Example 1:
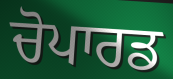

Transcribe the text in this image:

ਚੋਪਾਰਡ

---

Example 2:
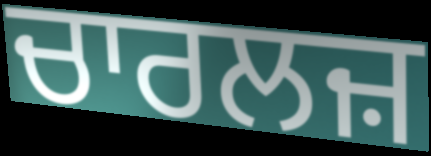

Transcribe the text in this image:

ਚਾਰਲਜ਼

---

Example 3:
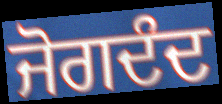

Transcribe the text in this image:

ਜੋਗਦੰਦ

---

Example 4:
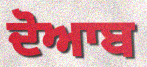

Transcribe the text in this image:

ਦੋਆਬ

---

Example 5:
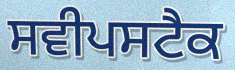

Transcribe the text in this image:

ਸਵੀਪਸਟੈਕ